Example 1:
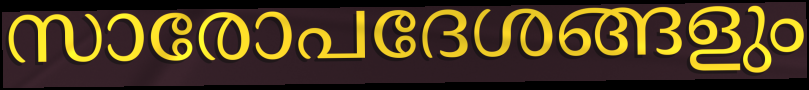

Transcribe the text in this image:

സാരോപദേശങ്ങളും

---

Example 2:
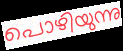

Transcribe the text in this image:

പൊഴിയുന്നു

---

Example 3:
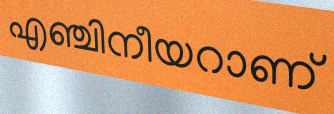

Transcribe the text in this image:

എഞ്ചിനീയറാണ്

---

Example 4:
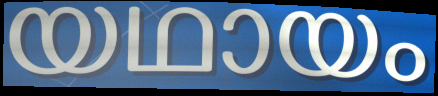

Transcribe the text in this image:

യഥായം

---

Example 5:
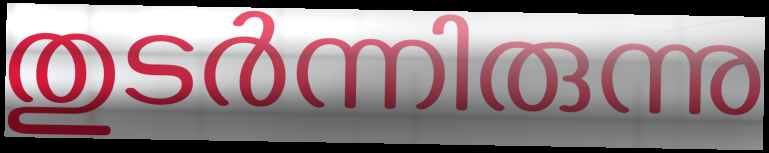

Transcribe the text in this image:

തുടർന്നിരുന്നു